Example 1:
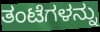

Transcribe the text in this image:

ತಂಟೆಗಳನ್ನು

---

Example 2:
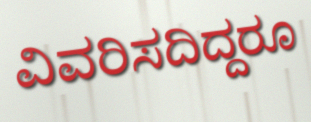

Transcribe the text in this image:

ವಿವರಿಸದಿದ್ದರೂ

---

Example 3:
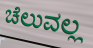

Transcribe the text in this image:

ಚೆಲುವಲ್ಲ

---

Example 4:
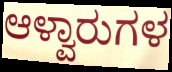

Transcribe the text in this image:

ಆಳ್ವಾರುಗಳ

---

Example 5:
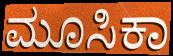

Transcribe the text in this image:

ಮೂಸಿಕಾ